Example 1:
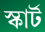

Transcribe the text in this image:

স্কাৰ্ট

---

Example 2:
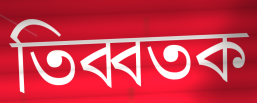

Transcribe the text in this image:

তিব্বতক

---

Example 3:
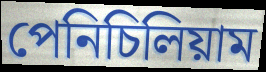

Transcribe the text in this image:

পেনিচিলিয়াম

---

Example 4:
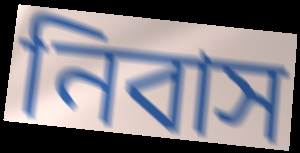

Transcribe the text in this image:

নিবাস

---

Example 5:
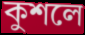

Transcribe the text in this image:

কুশলে